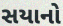
સયાનો